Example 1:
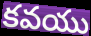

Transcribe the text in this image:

కవయు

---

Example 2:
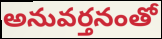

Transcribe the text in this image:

అనువర్తనంతో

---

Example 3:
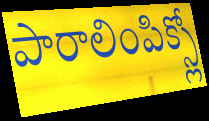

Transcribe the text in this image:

పారాలింపిక్స్లో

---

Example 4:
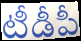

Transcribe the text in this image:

టీడీపీ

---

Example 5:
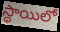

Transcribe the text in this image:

స్ధాయిలో